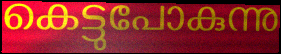
കെട്ടുപോകുന്നു